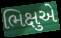
ભિક્ષુએ